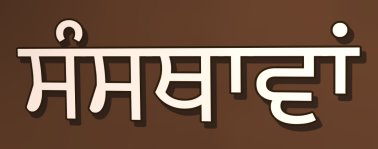
ਸੰਸਥਾਵਾਂ